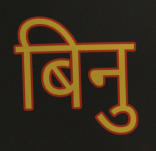
बिनु